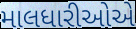
માલધારીઓએ